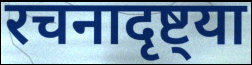
रचनादृष्ट्या